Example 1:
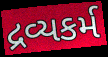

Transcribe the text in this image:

દ્રવ્યકર્મ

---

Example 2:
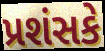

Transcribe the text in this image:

પ્રશંસકે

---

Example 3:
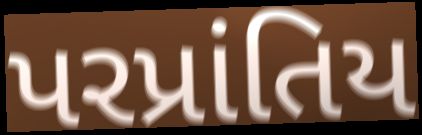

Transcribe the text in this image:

પરપ્રાંતિય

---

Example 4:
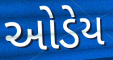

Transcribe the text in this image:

ઓડેય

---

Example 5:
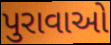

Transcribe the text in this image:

પુરાવાઓ